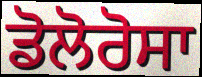
ਡੋਲੋਰੋਸਾ